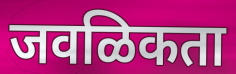
जवळिकता